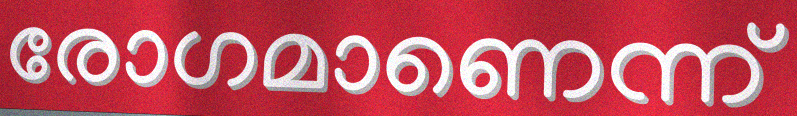
രോഗമാണെന്ന്